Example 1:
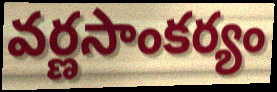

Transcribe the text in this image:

వర్ణసాంకర్యం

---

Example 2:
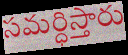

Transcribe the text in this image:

సమర్ధిస్తారు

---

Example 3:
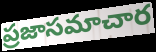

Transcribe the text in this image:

ప్రజాసమాచార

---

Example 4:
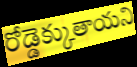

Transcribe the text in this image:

రోడ్డెక్కుతాయని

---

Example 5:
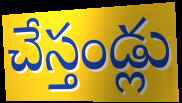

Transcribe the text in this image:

చేస్తండ్లు